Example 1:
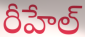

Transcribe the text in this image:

రీహేల్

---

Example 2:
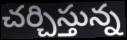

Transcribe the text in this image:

చర్చిస్తున్న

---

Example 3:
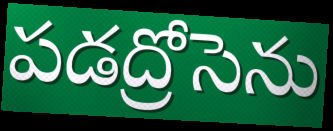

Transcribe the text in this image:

పడద్రోసెను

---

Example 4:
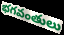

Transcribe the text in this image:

భగవంతులు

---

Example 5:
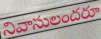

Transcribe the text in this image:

నివాసులందరూ